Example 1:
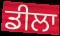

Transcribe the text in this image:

ਡੀਲਾ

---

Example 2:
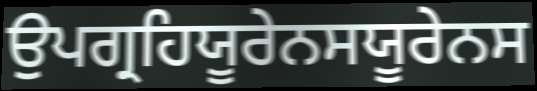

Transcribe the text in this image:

ਉਪਗ੍ਰਹਿਯੂਰੇਨਸਯੂਰੇਨਸ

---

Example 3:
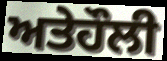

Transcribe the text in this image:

ਅਤੇਹੌਲੀ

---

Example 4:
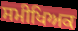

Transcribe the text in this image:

ਸਮੀਖਿਅਕ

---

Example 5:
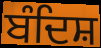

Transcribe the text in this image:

ਬੰਦਿਸ਼